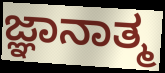
ಜ್ಞಾನಾತ್ಮ